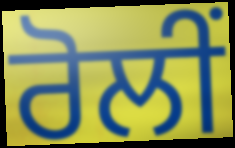
ਰੋਲੀਂ